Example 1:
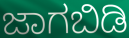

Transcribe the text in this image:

ಜಾಗಬಿಡಿ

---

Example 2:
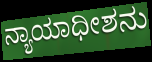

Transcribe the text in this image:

ನ್ಯಾಯಾಧೀಶನು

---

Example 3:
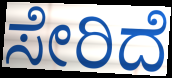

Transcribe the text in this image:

ಸೇರಿದೆ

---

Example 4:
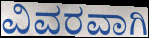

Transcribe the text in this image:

ವಿವರವಾಗಿ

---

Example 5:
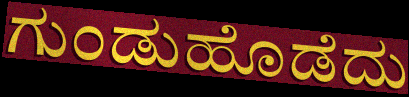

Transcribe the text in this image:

ಗುಂಡುಹೊಡೆದು